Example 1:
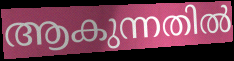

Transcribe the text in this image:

ആകുന്നതിൽ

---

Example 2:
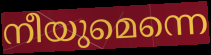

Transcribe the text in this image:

നീയുമെന്നെ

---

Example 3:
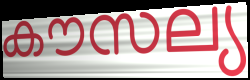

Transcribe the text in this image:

കൗസല്യ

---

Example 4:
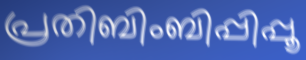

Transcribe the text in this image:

പ്രതിബിംബിപ്പിപ്പൂ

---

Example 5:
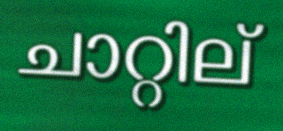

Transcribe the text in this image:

ചാറ്റില്